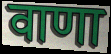
वाणा